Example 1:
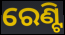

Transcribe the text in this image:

ରେଣ୍ଟି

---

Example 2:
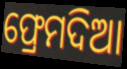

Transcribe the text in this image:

ଫ୍ରେମଦିଆ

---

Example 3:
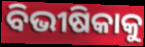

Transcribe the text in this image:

ବିଭୀଷିକାକୁ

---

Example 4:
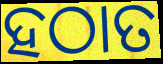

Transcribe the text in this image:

ହଠାତ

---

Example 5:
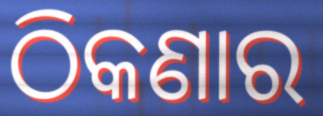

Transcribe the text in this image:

ଠିକଣାର